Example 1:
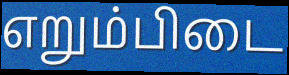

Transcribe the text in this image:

எறும்பிடை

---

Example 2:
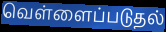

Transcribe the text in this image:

வெள்ளைப்படுதல்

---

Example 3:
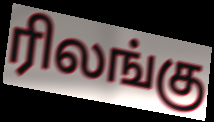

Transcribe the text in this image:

ரிலங்கு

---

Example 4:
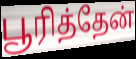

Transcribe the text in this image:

பூரித்தேன்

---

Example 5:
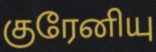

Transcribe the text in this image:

குரேனியு